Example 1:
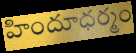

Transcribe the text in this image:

హిందూధర్మం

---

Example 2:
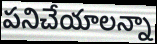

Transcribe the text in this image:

పనిచేయాలన్నా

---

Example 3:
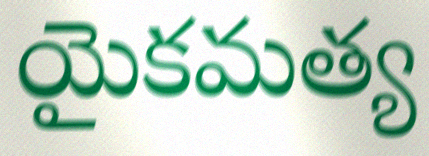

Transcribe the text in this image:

యైకమత్య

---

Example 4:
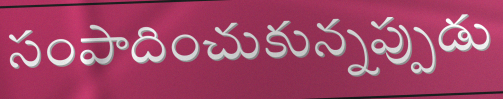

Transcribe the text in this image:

సంపాదించుకున్నప్పుడు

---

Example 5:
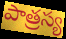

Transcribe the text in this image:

పాత్రస్య